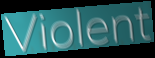
Violent